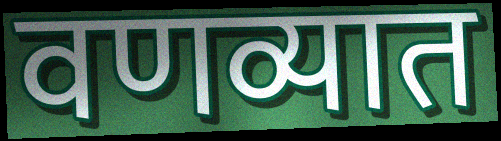
वणव्यात